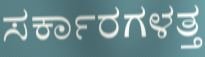
ಸರ್ಕಾರಗಳತ್ತ